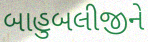
બાહુબલીજીને